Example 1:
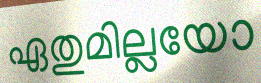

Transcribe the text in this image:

ഏതുമില്ലയോ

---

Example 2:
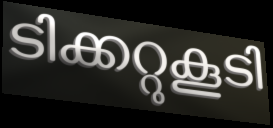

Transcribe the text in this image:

ടിക്കറ്റുകൂടി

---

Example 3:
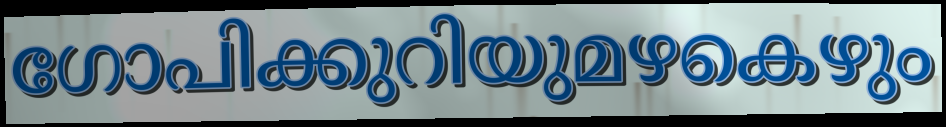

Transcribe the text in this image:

ഗോപിക്കുറിയുമഴകെഴും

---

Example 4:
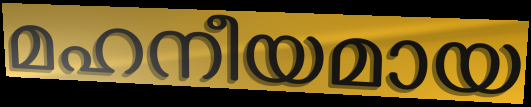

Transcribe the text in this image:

മഹനീയമായ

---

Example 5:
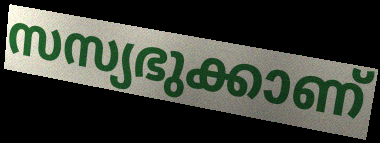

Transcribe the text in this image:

സസ്യഭുക്കാണ്